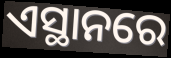
ଏସ୍ଥାନରେ